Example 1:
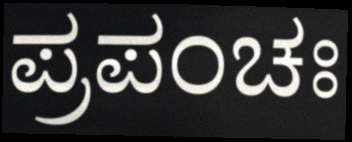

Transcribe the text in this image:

ಪ್ರಪಂಚಃ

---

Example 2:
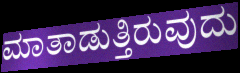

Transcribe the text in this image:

ಮಾತಾಡುತ್ತಿರುವುದು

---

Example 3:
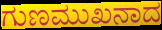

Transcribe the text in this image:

ಗುಣಮುಖನಾದ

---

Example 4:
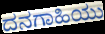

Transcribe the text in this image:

ದನಗಾಹಿಯು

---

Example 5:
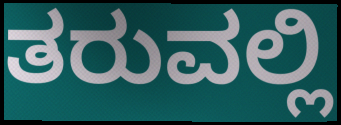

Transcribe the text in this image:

ತರುವಲ್ಲಿ